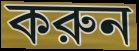
করুন